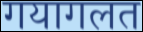
गयागलत